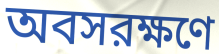
অবসরক্ষণে